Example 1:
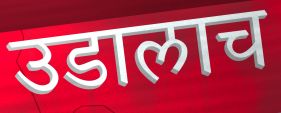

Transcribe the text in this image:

उडालाच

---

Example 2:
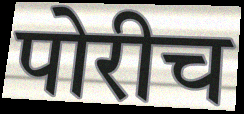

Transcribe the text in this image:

पोरीच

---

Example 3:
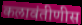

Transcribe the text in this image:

कलावंतीणीस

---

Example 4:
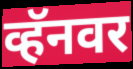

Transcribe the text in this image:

व्हॅनवर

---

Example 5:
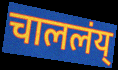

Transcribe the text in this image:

चाललंय्